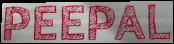
PEEPAL